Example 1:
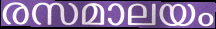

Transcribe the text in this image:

രസമാലയം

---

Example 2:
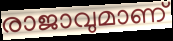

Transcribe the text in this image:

രാജാവുമാണ്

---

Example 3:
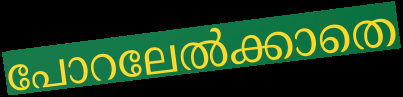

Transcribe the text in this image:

പോറലേൽക്കാതെ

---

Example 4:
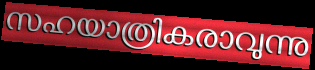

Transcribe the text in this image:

സഹയാത്രികരാവുന്നു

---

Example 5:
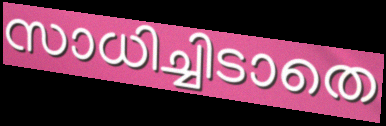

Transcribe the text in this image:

സാധിച്ചിടാതെ